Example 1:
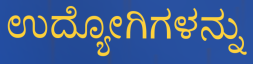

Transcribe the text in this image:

ಉದ್ಯೋಗಿಗಳನ್ನು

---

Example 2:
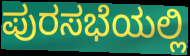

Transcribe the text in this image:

ಪುರಸಭೆಯಲ್ಲಿ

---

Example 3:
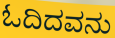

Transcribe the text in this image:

ಓದಿದವನು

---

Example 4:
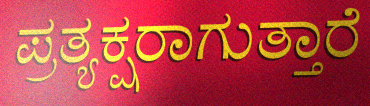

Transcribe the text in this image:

ಪ್ರತ್ಯಕ್ಷರಾಗುತ್ತಾರೆ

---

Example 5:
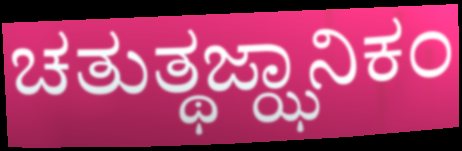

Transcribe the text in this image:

ಚತುತ್ಥಜ್ಝಾನಿಕಂ